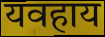
यवहाय